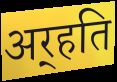
अर्हति